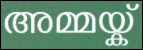
അമ്മയ്ക്